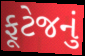
ફૂટેજનું